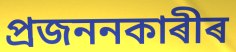
প্ৰজননকাৰীৰ